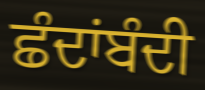
ਛੰਦਾਂਬੰਦੀ